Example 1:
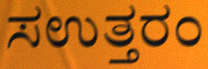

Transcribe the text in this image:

ಸಉತ್ತರಂ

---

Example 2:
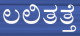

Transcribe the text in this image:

ಲಲಿತತ್ತೆ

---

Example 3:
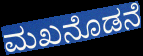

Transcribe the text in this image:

ಮಖನೊಡನೆ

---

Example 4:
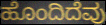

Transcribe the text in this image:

ಹೊಂದಿದೆವು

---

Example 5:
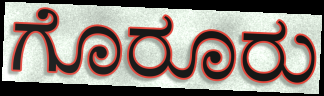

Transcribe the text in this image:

ಗೊರೂರು